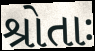
શ્રોતાઃ